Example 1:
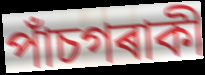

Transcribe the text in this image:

পাঁচগৰাকী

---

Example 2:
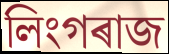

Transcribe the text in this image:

লিংগৰাজ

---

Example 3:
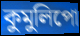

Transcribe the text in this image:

কুমুলিপো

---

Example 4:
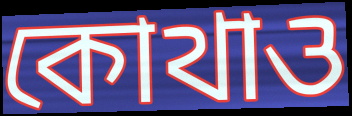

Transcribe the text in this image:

কোথাও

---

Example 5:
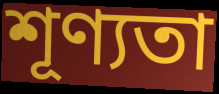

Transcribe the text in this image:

শূণ্যতা